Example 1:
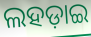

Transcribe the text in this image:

ଲହଡ଼ାଇ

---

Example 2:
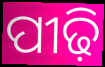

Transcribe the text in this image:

ପୀଢ଼ି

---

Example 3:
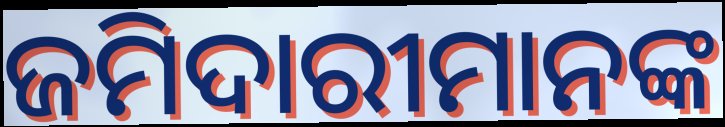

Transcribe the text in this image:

ଜମିଦାରୀମାନଙ୍କ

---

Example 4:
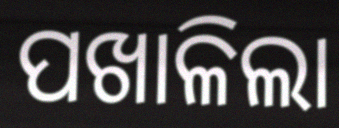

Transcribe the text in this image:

ପଖାଳିଲା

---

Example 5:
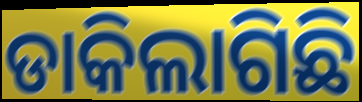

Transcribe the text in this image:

ଡାକିଲାଗିଛି